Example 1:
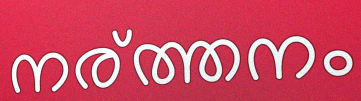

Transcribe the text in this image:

നര്ത്തനം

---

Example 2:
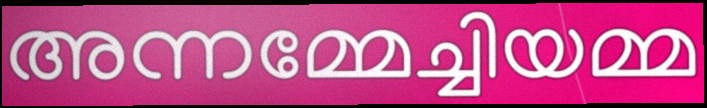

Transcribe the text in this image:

അന്നമ്മേച്ചിയമ്മ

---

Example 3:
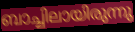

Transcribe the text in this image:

ബാച്ചിലായിരുന്നു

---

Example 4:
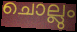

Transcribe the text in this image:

ചൊല്ലും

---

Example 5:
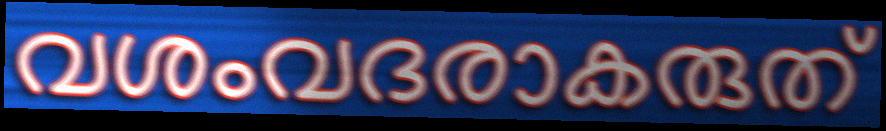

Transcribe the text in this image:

വശംവദരാകരുത്